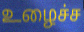
உழைச்ச